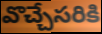
వొచ్చేసరికి